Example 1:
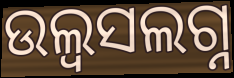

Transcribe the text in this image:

ଉଲ୍ୱସଲଗ୍ନ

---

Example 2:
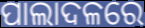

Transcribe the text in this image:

ପାଲାଦଳରେ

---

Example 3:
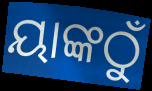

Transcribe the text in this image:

ୟାଙ୍କଠୁଁ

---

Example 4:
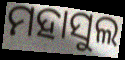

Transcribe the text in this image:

ମହାସୁଲ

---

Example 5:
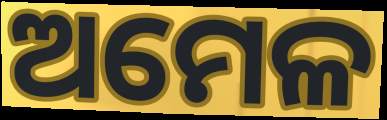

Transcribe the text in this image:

ଅମେଳ